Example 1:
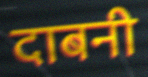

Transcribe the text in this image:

दाबनी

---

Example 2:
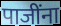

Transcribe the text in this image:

पाजींना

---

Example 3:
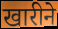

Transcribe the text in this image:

खारीने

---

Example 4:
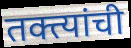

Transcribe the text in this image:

तक्त्यांची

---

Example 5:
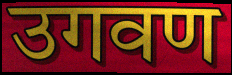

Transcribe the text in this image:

उगवण